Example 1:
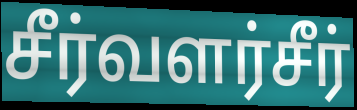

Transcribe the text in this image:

சீர்வளர்சீர்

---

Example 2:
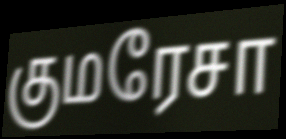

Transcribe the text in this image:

குமரேசா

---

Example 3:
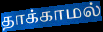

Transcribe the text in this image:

தாக்காமல்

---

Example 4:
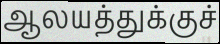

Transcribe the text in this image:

ஆலயத்துக்குச்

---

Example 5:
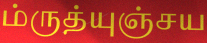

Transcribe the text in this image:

ம்ருத்யுஞ்சய